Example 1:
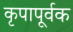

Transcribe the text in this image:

कृपापूर्वक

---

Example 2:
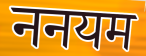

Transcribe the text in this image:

ननयम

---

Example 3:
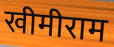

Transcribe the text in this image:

खीमीराम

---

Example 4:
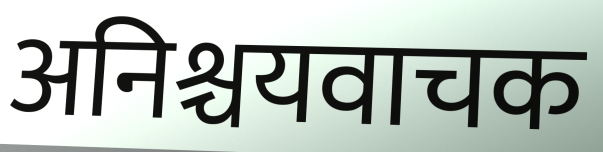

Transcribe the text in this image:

अनिश्चयवाचक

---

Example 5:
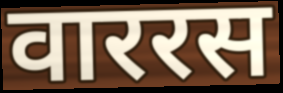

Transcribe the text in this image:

वाररस